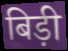
बिड़ी